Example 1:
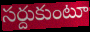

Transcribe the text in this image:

సర్దుకుంటూ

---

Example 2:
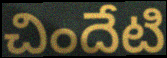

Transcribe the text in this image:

చిందేటి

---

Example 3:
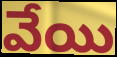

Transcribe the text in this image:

వేయి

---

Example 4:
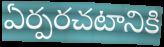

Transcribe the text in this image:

ఏర్పరచటానికి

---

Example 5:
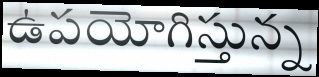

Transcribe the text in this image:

ఉపయోగిస్తున్న